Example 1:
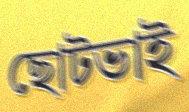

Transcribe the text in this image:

ছোটভাই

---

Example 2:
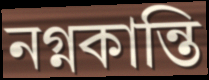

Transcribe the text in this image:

নগ্নকান্তি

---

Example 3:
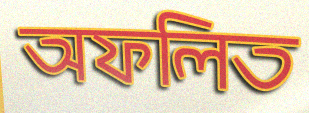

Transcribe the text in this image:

অফলিত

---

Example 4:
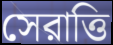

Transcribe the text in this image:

সেরাত্তি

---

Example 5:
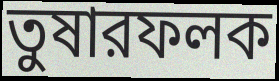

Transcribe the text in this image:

তুষারফলক